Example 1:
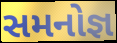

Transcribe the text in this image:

સમનોજ્ઞ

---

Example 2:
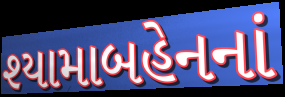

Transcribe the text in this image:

શ્યામાબહેનનાં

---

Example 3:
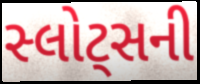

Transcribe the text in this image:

સ્લોટ્સની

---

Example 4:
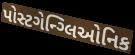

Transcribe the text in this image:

પોસ્ટગેન્ગ્લિઓનિક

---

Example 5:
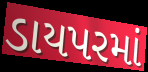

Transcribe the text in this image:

ડાયપરમાં